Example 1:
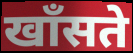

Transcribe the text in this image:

खाँसते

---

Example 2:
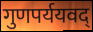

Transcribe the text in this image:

गुणपर्ययवद्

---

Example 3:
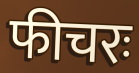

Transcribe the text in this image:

फीचरः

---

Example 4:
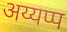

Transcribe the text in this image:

अय्यप्प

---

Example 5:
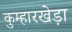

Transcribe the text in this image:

कुम्हारखेड़ा